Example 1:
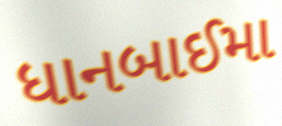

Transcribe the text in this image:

ધાનબાઈમા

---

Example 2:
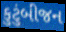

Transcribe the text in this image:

કુટુંબીજન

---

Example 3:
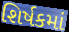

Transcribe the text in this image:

શિર્ષકમાં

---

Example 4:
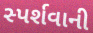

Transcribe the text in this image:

સ્પર્શવાની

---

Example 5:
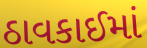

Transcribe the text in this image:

ઠાવકાઈમાં